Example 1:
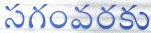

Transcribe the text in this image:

సగంవరకు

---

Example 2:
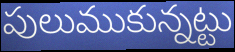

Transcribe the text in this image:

పులుముకున్నట్టు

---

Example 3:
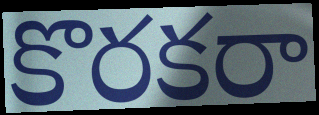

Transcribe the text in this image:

కొరకరా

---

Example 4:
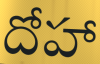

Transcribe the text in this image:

దోహా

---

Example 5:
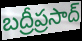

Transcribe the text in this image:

బద్రీప్రసాద్